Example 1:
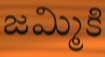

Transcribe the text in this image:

జమ్మికి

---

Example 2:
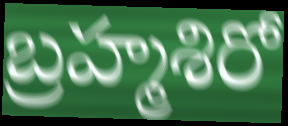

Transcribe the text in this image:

బ్రహ్మశిరో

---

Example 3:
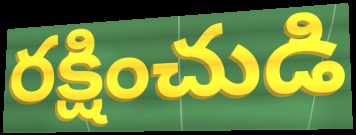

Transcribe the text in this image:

రక్షించుడి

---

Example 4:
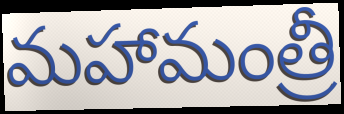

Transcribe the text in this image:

మహామంత్రీ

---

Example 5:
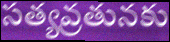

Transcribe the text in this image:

సత్యవ్రతునకు